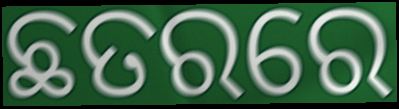
ଛତରରେ